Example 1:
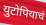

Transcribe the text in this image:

युटोपियाचं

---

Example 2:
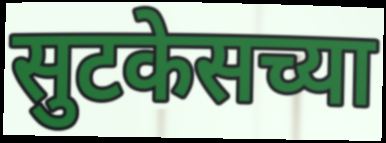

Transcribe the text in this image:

सुटकेसच्या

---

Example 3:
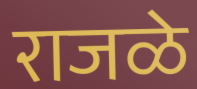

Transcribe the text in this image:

राजळे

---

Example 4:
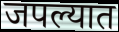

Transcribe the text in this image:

जपल्यात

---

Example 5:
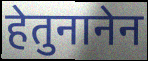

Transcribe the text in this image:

हेतुनानेन